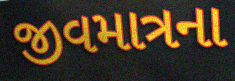
જીવમાત્રના